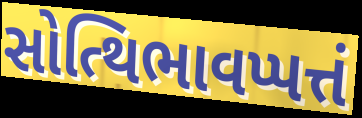
સોત્થિભાવપ્પત્તં